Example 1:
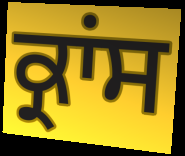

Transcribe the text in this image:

ਕ੍ਰਾਂਸ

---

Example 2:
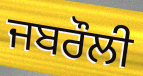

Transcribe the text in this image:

ਜਬਰੌਲੀ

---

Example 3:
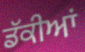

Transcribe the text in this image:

ਡੱਕੀਆਂ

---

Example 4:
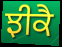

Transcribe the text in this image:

ਝੀਕੈ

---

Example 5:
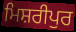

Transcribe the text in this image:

ਮਿਸ਼ਰੀਪੁਰ